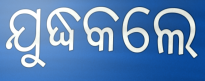
ଯୁଦ୍ଧକଲେ